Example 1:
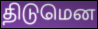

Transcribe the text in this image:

திடுமென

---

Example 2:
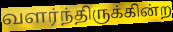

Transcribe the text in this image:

வளர்ந்திருக்கின்ற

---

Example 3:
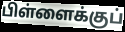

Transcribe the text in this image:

பிள்ளைக்குப்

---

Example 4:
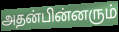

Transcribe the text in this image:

அதன்பின்னரும்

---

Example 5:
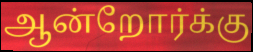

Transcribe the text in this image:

ஆன்றோர்க்கு